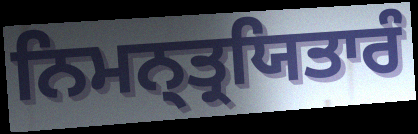
ਨਿਮਨ੍ਤ੍ਰਯਿਤਾਰੰ